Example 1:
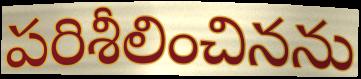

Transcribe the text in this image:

పరిశీలించినను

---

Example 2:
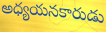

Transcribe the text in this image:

అధ్యయనకారుడు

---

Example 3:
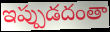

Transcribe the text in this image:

ఇప్పుడదంతా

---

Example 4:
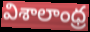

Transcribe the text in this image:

విశాలాంధ్ర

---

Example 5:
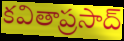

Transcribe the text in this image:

కవితాప్రసాద్